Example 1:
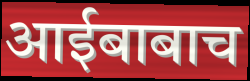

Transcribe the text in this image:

आईबाबाच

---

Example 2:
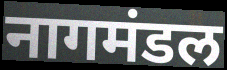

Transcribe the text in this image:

नागमंडल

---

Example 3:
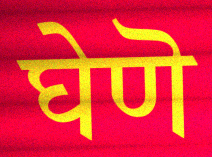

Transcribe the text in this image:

घेणॆ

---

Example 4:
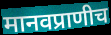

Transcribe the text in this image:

मानवप्राणीच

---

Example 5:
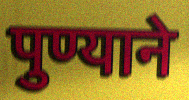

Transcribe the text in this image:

पुण्याने